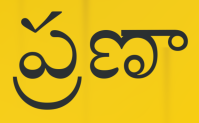
ప్రణా